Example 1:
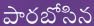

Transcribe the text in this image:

పారబోసిన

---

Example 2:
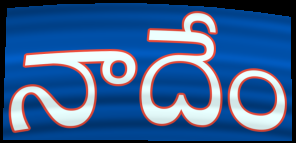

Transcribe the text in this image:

నాదేం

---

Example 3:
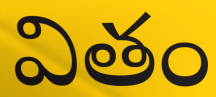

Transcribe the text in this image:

వితం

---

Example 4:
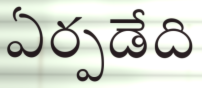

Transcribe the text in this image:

ఏర్పడేది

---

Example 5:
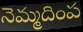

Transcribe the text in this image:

నెమ్మదింప